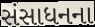
સંસાધનના